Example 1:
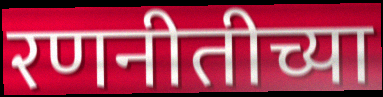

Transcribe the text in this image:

रणनीतीच्या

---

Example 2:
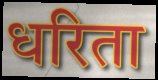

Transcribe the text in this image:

धरिता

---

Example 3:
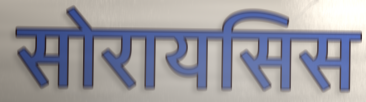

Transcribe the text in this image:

सोरायसिस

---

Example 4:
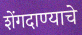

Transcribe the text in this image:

शेंगदाण्याचे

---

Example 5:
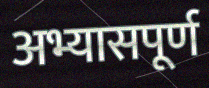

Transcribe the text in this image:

अभ्यासपूर्ण